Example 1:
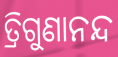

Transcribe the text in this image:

ତ୍ରିଗୁଣାନନ୍ଦ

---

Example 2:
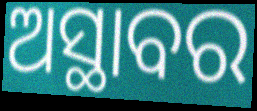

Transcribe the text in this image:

ଅସ୍ଥାବର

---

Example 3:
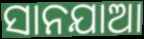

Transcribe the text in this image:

ସାନଯାଆ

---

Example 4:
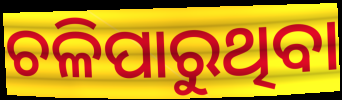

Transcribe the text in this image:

ଚଳିପାରୁଥିବା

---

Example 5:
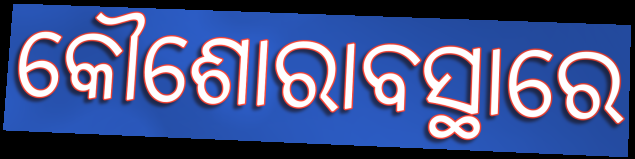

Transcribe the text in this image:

କୌଶୋରାବସ୍ଥାରେ